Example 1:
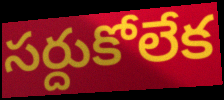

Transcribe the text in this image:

సర్దుకోలేక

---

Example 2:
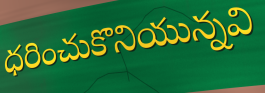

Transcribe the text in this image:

ధరించుకొనియున్నవి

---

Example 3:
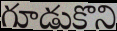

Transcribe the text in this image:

గూడుకొని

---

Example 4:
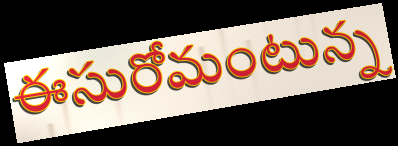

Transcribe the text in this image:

ఈసురోమంటున్న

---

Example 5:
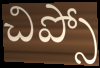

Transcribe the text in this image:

చిప్సో